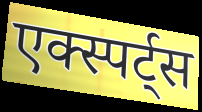
एक्स्पर्ट्स